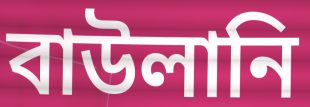
বাউলানি